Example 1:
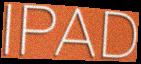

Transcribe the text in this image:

IPAD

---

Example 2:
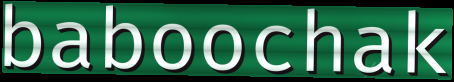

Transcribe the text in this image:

baboochak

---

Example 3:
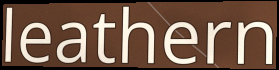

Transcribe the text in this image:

leathern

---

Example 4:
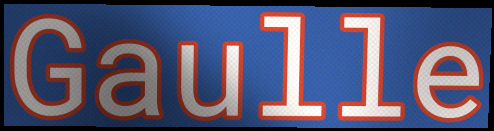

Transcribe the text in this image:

Gaulle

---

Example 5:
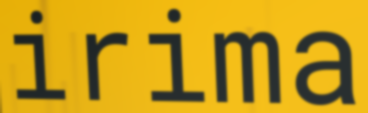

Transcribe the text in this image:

irima